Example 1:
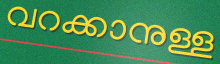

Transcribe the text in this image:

വറക്കാനുള്ള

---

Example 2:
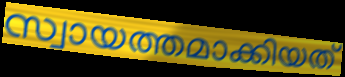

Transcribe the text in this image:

സ്വായത്തമാക്കിയത്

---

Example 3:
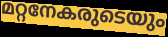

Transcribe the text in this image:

മറ്റനേകരുടെയും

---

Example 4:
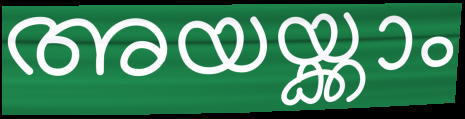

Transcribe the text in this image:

അയയ്ക്കാം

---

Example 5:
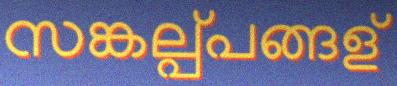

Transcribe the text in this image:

സങ്കല്പ്പങ്ങള്